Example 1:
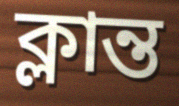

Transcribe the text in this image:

ক্লান্ত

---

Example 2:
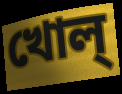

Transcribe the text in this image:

খোল্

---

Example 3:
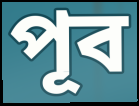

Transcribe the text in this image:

পূব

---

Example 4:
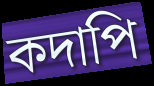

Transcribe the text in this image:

কদাপি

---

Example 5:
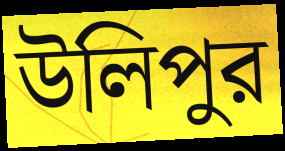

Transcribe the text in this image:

উলিপুর